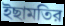
ইছামতির